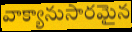
వాక్యానుసారమైన